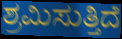
ಶ್ರಮಿಸುತ್ತಿದೆ